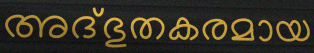
അദ്ഭുതകരമായ